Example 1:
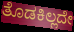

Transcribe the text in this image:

ತೊಡಕಿಲ್ಲದೇ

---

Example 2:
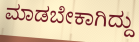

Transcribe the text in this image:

ಮಾಡಬೇಕಾಗಿದ್ದು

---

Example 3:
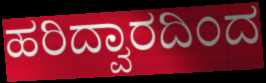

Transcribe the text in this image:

ಹರಿದ್ವಾರದಿಂದ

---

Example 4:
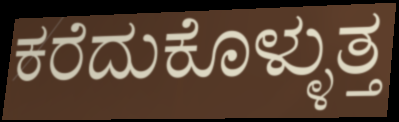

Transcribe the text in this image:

ಕರೆದುಕೊಳ್ಳುತ್ತ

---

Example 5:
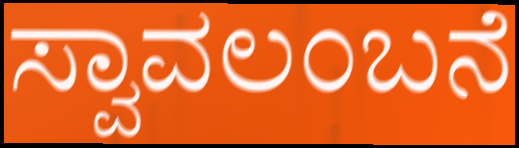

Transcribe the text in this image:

ಸ್ವಾವಲಂಬನೆ